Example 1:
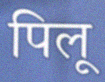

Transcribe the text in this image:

पिलू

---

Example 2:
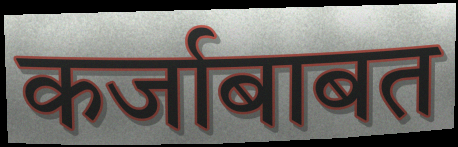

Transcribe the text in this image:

कर्जाबाबत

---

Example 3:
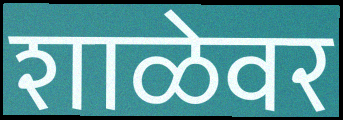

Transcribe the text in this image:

शाळेवर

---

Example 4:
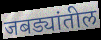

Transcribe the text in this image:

जबड्यांतील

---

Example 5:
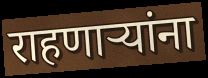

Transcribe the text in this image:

राहणाऱ्यांना